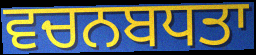
ਵਚਨਬਧਤਾ